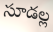
సూడల్ల